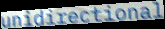
unidirectional